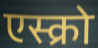
एस्क्रो